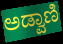
ಅಡ್ವಾಣಿ